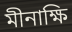
মীনাক্ষি